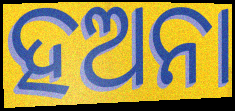
ହଅନା